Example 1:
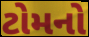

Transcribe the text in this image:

ટોમનો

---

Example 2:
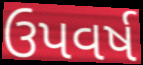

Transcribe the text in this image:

ઉપવર્ષ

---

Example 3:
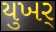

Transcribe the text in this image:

યુખર્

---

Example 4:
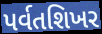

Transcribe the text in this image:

પર્વતશિખર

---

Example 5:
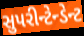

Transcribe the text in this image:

સુપરીન્ટેન્ડેન્ટ